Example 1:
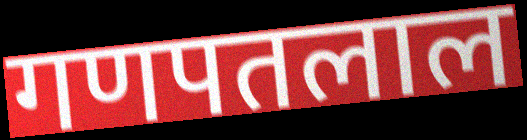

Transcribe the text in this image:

गणपतलाल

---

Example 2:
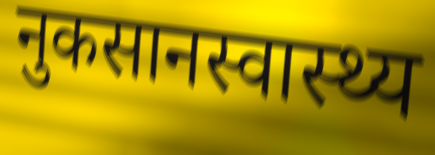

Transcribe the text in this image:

नुकसानस्वास्थ्य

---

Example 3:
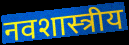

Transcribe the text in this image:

नवशास्त्रीय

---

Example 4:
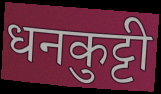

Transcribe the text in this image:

धनकुट्टी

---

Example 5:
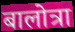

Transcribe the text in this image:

बालोत्रा